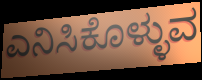
ಎನಿಸಿಕೊಳ್ಳುವ